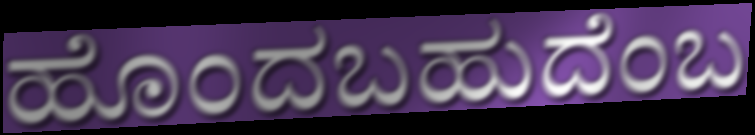
ಹೊಂದಬಹುದೆಂಬ